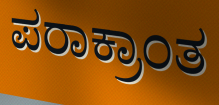
ಪರಾಕ್ರಾಂತ